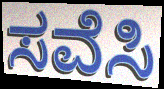
ಸವೆಸಿ